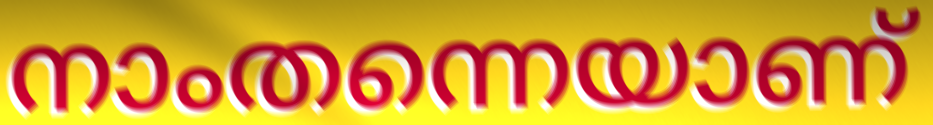
നാംതന്നെയാണ്